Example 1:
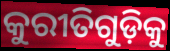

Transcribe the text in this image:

କୁରୀତିଗୁଡ଼ିକୁ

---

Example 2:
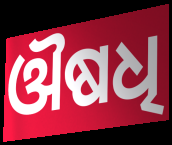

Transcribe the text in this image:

ଔଷଧି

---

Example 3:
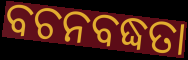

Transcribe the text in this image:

ବଚନବଦ୍ଧତା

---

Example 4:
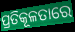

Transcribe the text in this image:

ପ୍ରତିକୂଳତାରେ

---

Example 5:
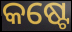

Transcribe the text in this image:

କଷ୍ଟେ